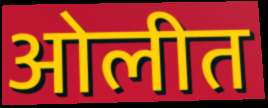
ओलीत